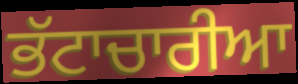
ਭੱਟਾਚਾਰੀਆ